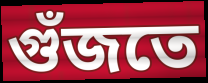
গুঁজতে